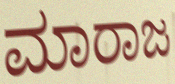
ಮಾರಾಜ